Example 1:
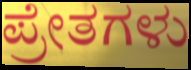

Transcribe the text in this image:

ಪ್ರೇತಗಳು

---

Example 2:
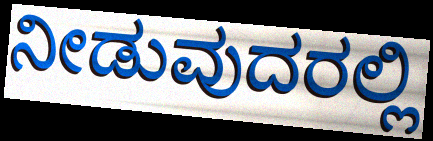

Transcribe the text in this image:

ನೀಡುವುದರಲ್ಲಿ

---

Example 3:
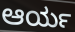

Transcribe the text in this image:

ಆರ್ಯ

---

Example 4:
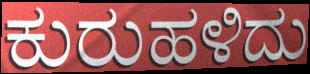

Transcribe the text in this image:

ಕುರುಹಳಿದು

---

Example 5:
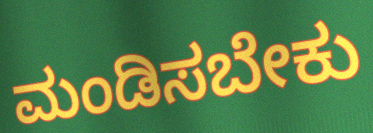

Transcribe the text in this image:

ಮಂಡಿಸಬೇಕು